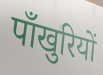
पाँखुरियों